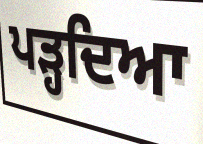
ਪੜ੍ਹਦਿਆ